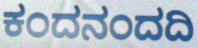
ಕಂದನಂದದಿ